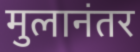
मुलानंतर